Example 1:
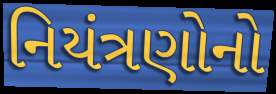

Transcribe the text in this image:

નિયંત્રણોનો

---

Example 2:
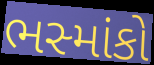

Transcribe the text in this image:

ભસ્માંકો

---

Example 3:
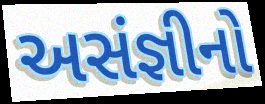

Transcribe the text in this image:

અસંજ્ઞીનો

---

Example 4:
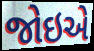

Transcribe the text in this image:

જોઇએ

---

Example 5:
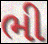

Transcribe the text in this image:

ભી